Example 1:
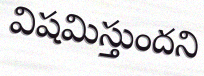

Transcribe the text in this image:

విషమిస్తుందని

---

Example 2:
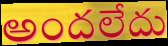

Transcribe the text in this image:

అందలేదు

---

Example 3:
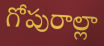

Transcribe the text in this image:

గోపురాల్లా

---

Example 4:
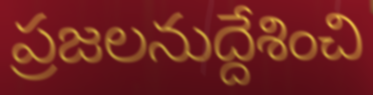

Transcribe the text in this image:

ప్రజలనుద్దేశించి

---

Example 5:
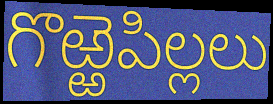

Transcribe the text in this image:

గొఱ్ఱెపిల్లలు